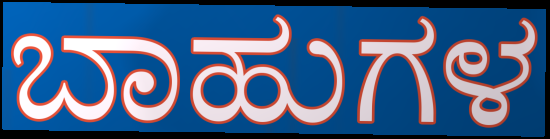
ಬಾಹುಗಳ